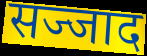
सज्‍जाद